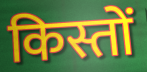
किस्तों